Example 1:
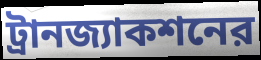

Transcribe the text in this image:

ট্রানজ্যাকশনের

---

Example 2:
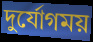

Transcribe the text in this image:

দুর্যোগময়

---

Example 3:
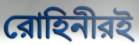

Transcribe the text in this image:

রোহিনীরই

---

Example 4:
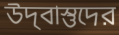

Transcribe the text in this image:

উদ্‌বাস্তুদের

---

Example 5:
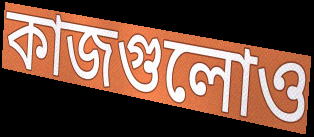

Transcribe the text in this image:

কাজগুলোও